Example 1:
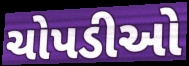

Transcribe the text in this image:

ચોપડીઓ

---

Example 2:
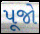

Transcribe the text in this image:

પૂજો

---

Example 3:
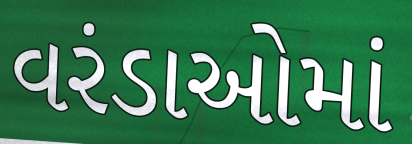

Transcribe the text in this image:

વરંડાઓમાં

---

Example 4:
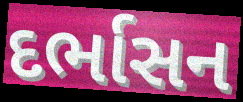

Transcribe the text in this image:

દર્ભાસન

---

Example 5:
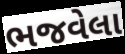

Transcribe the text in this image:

ભજવેલા